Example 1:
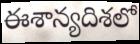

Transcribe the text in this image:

ఈశాన్యదిశలో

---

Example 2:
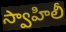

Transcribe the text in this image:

స్వాహిలీ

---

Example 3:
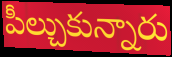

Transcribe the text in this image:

పీల్చుకున్నారు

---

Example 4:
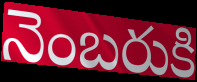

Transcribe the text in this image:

నెంబరుకి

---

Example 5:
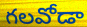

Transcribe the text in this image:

గలవోడా